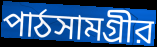
পাঠসামগ্রীর